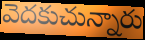
వెదకుచున్నారు